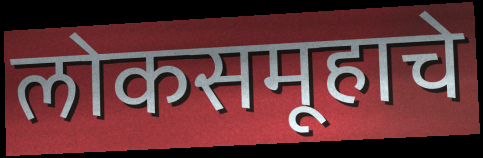
लोकसमूहाचे